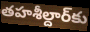
తహశీల్దార్‌కు